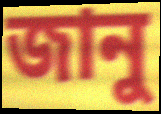
জানু